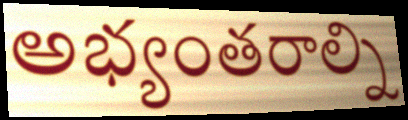
అభ్యంతరాల్ని